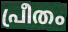
പ്രീതം